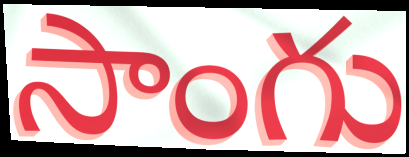
సాంగు